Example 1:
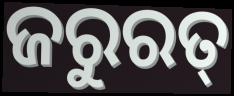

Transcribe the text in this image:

ଜରୁରତ୍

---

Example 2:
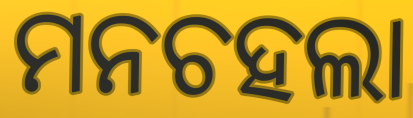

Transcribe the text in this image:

ମନଚହଲା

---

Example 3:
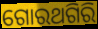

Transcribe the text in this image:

ଗୋରଥଗିରି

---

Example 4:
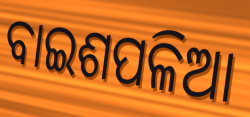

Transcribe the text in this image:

ବାଇଶପଳିଆ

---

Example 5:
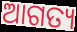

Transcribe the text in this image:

ଆଗତ୍ୟ